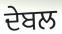
ਦੇਬਲ